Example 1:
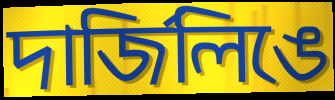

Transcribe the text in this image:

দার্জিলিঙে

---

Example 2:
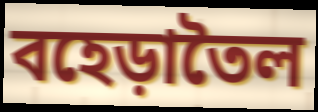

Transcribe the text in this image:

বহেড়াতৈল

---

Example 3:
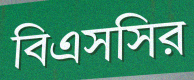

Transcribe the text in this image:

বিএসসির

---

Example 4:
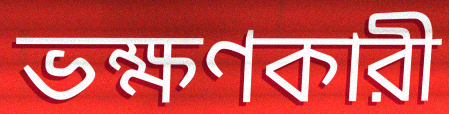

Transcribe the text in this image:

ভক্ষণকারী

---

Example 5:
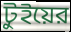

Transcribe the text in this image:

টুইয়ের